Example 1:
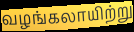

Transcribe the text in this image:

வழங்கலாயிற்று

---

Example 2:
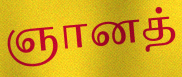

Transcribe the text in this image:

ஞானத்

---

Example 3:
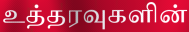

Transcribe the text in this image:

உத்தரவுகளின்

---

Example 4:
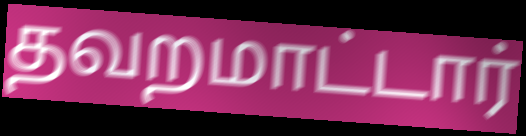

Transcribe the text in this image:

தவறமாட்டார்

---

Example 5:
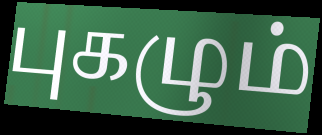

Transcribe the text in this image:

புகழும்